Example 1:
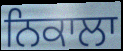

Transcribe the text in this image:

ਨਿਕਾਲਾ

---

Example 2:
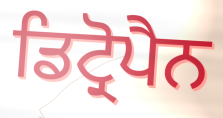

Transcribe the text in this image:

ਡਿਟ੍ਰੋਪੈਨ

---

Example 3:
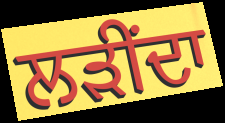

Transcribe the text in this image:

ਲੜੀਂਦਾ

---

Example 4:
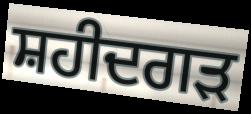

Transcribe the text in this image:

ਸ਼ਹੀਦਗੜ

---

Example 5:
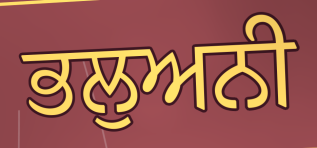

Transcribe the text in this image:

ਭਲੁਅਨੀ